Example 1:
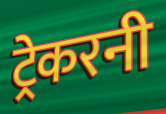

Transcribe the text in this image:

ट्रेकरनी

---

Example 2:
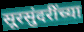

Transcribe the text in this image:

सूरसुंदरींच्या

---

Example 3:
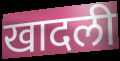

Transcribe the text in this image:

खादली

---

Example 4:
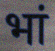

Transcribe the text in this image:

भां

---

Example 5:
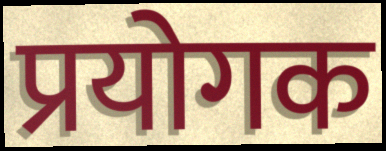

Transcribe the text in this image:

प्रयोगक